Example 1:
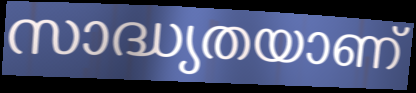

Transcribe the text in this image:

സാദ്ധ്യതയാണ്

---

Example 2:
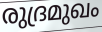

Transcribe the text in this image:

രുദ്രമുഖം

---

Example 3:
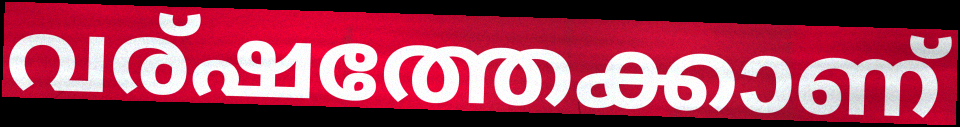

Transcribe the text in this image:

വര്ഷത്തേക്കാണ്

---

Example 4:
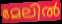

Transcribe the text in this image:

മേലിൽ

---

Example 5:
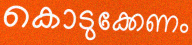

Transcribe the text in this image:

കൊടുക്കേണം